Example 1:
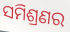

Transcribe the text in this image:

ସମିଶ୍ରଣର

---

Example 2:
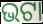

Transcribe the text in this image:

ଭଟା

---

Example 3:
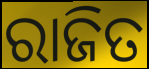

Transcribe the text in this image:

ରାଜିତ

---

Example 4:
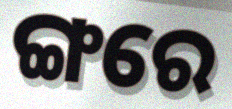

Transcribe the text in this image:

ଙ୍ଗରେ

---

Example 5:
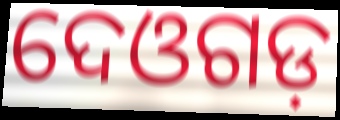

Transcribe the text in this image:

ଦେଓଗଡ଼